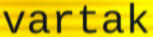
vartak